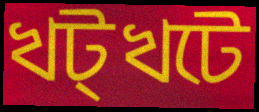
খট্‌খটে